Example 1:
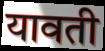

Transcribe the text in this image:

यावती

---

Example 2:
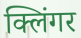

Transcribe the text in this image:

क्लिंगर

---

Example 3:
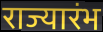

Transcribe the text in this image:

राज्यारंभ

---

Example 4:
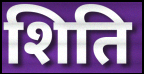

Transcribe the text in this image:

शिति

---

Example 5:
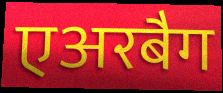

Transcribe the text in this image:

एअरबैग